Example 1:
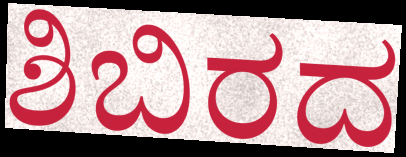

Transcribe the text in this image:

ಶಿಬಿರದ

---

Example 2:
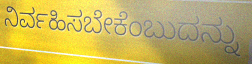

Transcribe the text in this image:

ನಿರ್ವಹಿಸಬೇಕೆಂಬುದನ್ನು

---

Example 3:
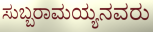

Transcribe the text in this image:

ಸುಬ್ಬರಾಮಯ್ಯನವರು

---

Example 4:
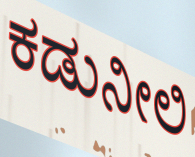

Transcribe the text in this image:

ಕಡುನೀಲಿ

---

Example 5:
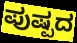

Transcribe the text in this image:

ಪುಷ್ಪದ